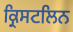
ਕ੍ਰਿਸਟਲਿਨ